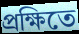
প্রক্ষিতে